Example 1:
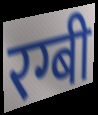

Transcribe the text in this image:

रग्बी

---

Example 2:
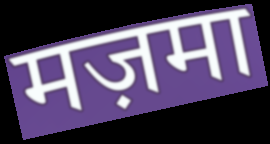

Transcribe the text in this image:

मज़मा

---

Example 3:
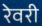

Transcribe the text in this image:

रेवरी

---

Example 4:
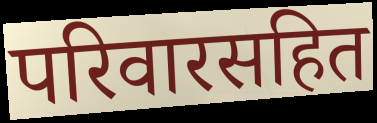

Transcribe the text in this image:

परिवारसहित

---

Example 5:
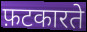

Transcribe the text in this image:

फ़टकारते